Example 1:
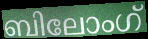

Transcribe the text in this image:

ബിലോംഗ്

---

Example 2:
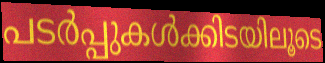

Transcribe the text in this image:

പടർപ്പുകൾക്കിടയിലൂടെ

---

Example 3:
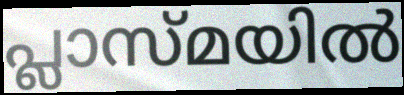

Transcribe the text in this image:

പ്ലാസ്മയിൽ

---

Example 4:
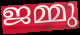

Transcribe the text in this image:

ജമ്മു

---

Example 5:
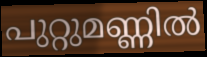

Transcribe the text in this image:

പുറ്റുമണ്ണിൽ